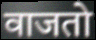
वाजतो